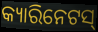
କ୍ୟାରିନେଟସ୍